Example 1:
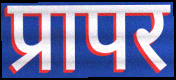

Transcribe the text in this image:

प्रापर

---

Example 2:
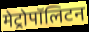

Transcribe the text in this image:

मेट्रोपॉलिटन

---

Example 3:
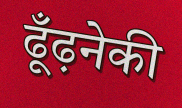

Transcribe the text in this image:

ढूँढ़नेकी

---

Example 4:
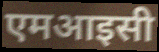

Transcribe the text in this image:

एमआइसी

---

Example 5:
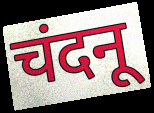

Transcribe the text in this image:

चंदनू